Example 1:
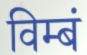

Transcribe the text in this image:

विम्बं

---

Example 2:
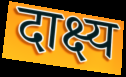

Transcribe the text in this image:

दाक्ष्य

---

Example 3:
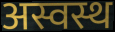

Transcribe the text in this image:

अस्वस्थ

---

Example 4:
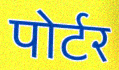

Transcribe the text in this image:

पोर्टर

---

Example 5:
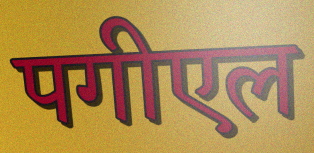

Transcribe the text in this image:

पगीएल